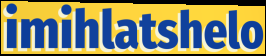
imihlatshelo